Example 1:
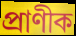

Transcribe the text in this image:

প্ৰাণীক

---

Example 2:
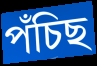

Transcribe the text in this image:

পঁচিছ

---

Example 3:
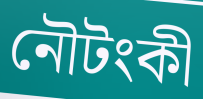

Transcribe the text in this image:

নৌটংকী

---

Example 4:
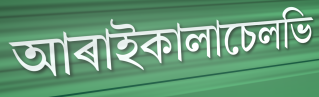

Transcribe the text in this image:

আৰাইকালাচেলভি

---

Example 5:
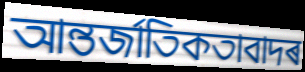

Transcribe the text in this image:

আন্তৰ্জাতিকতাবাদৰ